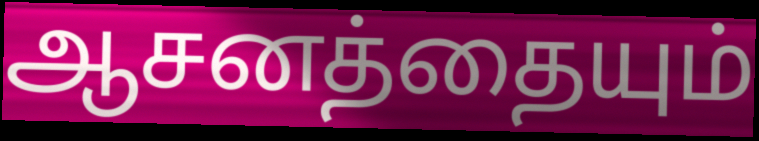
ஆசனத்தையும்